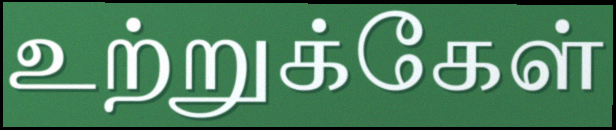
உற்றுக்கேள்